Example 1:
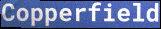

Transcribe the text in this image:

Copperfield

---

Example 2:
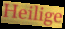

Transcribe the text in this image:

Heilige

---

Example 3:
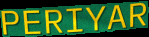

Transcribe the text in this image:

PERIYAR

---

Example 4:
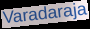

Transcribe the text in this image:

Varadaraja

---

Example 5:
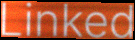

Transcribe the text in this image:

Linked